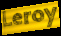
Leroy